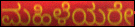
ಮಹಿಳೆಯರೇ